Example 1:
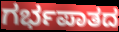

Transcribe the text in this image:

ಗರ್ಭಪಾತದ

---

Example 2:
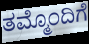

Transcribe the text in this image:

ತಮ್ಮೊಂದಿಗೆ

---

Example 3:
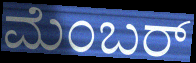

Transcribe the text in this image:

ಮೆಂಬರ್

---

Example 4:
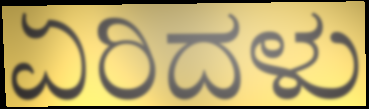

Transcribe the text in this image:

ಏರಿದಳು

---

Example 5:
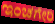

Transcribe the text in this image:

ಇಂಚಗೇರಿ